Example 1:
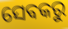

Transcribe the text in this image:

ସେବକରୁ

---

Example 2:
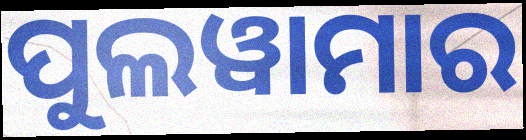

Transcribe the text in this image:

ପୁଲୱାମାର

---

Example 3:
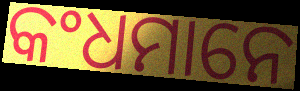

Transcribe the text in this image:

କଂଧମାନେ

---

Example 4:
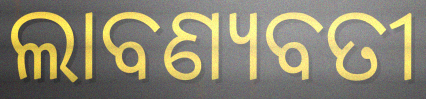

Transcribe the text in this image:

ଲାବଣ୍ୟବତୀ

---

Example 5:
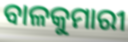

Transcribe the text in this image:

ବାଳକୁମାରୀ